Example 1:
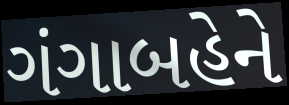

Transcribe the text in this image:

ગંગાબહેને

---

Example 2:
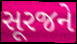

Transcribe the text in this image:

સૂરજને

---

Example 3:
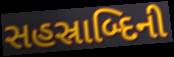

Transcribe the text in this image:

સહસ્રાબ્દિની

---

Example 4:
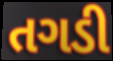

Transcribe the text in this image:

તગડી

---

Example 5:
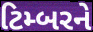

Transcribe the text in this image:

ટિમ્બરને